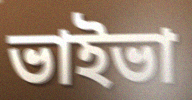
ভাইভা